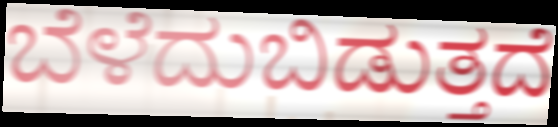
ಬೆಳೆದುಬಿಡುತ್ತದೆ